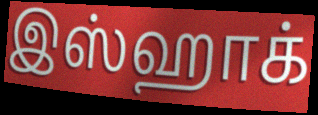
இஸ்ஹாக்